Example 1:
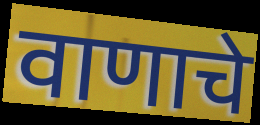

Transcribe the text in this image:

वाणाचे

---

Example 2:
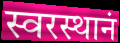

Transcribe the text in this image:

स्वरस्थानं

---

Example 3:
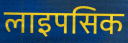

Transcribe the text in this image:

लाइपसिक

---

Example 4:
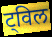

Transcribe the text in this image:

ट्विल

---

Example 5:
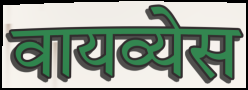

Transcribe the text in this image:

वायव्येस